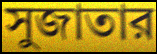
সুজাতার